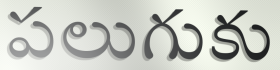
పలుగుకు